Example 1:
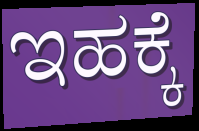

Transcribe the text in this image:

ಇಹಕ್ಕೆ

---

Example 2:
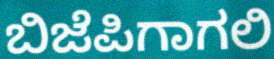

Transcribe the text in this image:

ಬಿಜೆಪಿಗಾಗಲಿ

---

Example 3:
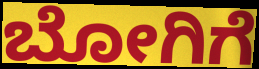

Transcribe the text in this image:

ಬೋಗಿಗೆ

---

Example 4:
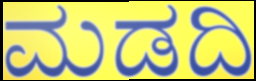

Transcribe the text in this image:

ಮಡದಿ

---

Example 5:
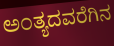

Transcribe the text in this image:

ಅಂತ್ಯದವರೆಗಿನ